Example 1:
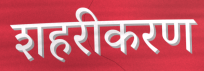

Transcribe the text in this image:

शहरीकरण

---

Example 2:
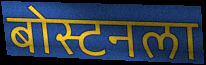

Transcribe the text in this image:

बोस्टनला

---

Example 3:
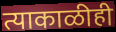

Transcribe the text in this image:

त्याकाळीही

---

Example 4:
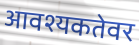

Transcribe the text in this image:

आवश्यकतेवर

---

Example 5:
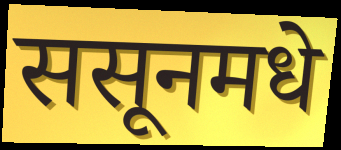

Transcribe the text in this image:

ससूनमधे